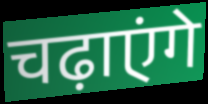
चढ़ाएंगे